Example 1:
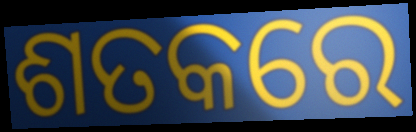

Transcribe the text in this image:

ଶତକରେ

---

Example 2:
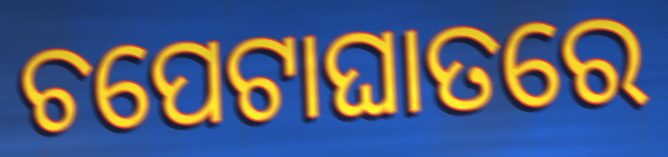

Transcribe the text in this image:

ଚପେଟାଘାତରେ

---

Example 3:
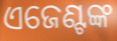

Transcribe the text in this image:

ଏଜେଣ୍ଟଙ୍କ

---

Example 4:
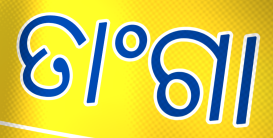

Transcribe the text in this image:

ତାଂଗା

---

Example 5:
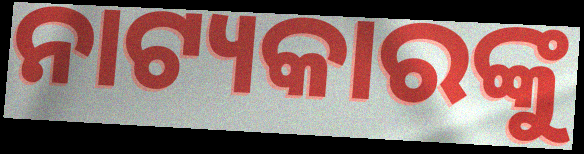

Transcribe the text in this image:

ନାଟ୍ୟକାରଙ୍କୁ